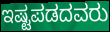
ಇಷ್ಟಪಡದವರು